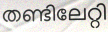
തണ്ടിലേറ്റി